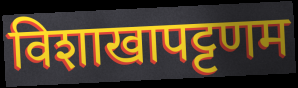
विशाखापट्टणम